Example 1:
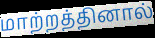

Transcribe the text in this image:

மாற்றத்தினால்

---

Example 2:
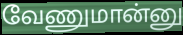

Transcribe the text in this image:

வேணுமான்னு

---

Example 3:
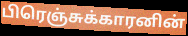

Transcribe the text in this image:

பிரெஞ்சுக்காரனின்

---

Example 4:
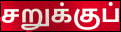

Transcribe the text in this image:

சறுக்குப்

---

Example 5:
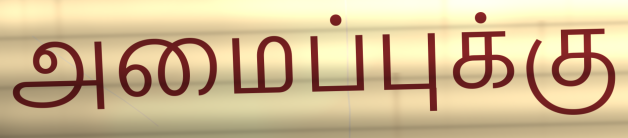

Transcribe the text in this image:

அமைப்புக்கு